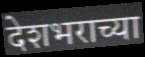
देशभराच्या